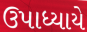
ઉપાધ્યાયે